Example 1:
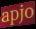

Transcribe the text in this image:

apjo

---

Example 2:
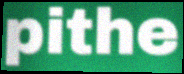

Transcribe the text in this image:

pithe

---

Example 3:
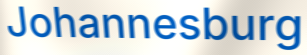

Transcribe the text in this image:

Johannesburg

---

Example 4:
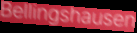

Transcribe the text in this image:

Bellingshausen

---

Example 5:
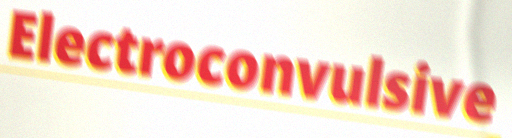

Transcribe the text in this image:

Electroconvulsive